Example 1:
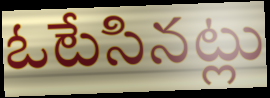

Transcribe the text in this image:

ఓటేసినట్లు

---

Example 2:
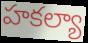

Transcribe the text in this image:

హకల్యా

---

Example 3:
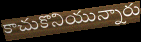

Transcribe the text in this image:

కాచుకొనియున్నారు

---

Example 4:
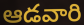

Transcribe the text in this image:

ఆడవారి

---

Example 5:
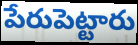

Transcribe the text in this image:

పేరుపెట్టారు